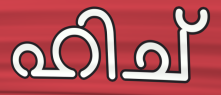
ഹിച്